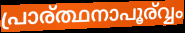
പ്രാര്ത്ഥനാപൂര്വ്വം